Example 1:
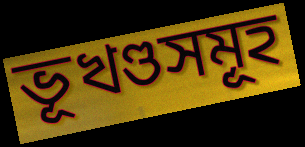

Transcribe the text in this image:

ভূখণ্ডসমূহ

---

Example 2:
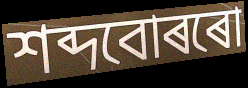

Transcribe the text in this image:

শব্দবোৰৰো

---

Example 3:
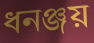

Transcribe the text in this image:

ধনঞ্জয়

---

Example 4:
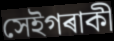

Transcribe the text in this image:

সেইগৰাকী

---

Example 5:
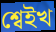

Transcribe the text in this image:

শ্বেইখ